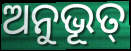
ଅନୁଭୂତ୍